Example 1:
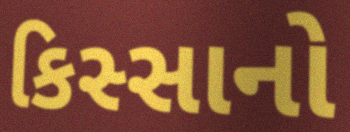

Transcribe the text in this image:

કિસ્સાનો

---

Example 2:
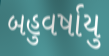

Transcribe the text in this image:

બહુવર્ષાયુ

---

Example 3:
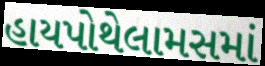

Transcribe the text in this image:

હાયપોથેલામસમાં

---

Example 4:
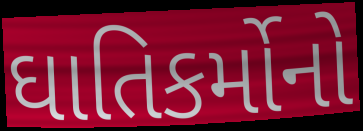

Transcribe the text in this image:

ઘાતિકર્મોનો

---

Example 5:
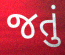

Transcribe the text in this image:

જતું